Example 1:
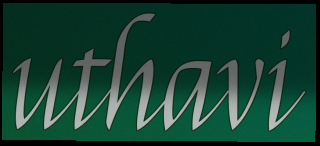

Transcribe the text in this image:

uthavi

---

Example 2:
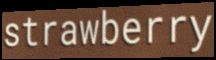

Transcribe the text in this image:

strawberry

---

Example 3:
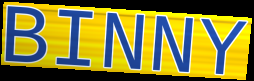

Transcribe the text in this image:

BINNY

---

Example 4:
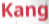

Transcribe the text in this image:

Kang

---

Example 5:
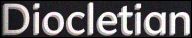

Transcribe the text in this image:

Diocletian